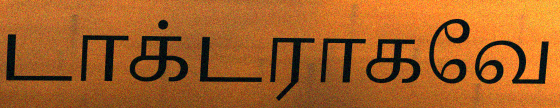
டாக்டராகவே